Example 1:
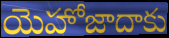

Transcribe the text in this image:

యెహోజాదాకు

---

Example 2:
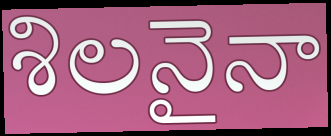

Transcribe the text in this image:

శిలనైనా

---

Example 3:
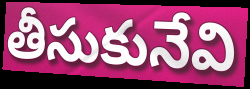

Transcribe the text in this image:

తీసుకునేవి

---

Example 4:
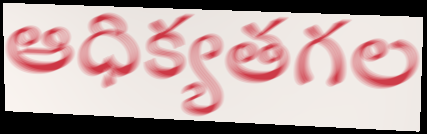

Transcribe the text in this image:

ఆధిక్యతగల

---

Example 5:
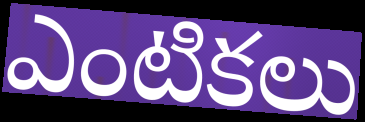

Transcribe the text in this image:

ఎంటికలు